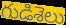
గుడిశెలు